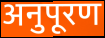
अनुपूरण